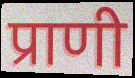
प्राणी